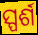
ସ୍ପର୍ଶ